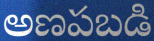
అణపబడి